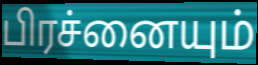
பிரச்னையும்